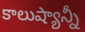
కాలుష్యాన్నీ